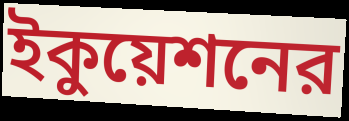
ইকুয়েশনের